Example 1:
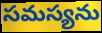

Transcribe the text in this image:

సమస్యను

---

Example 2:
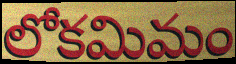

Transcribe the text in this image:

లోకమిమం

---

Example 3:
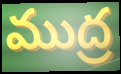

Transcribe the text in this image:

ముద్ర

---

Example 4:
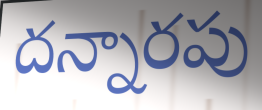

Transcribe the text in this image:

దన్నారపు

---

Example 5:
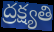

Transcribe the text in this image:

ద్రక్ష్యతి